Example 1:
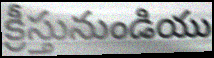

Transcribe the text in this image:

క్రీస్తునుండియు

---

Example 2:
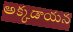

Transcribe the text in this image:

అక్కడాయన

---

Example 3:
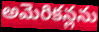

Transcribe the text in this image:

అమెరికన్లను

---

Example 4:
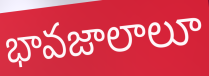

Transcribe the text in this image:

భావజాలాలూ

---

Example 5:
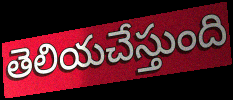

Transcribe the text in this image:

తెలియచేస్తుంది